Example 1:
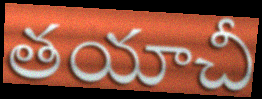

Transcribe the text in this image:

తయాచీ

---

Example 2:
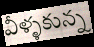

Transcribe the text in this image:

వీళ్ళకున్న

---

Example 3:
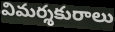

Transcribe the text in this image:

విమర్శకురాలు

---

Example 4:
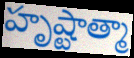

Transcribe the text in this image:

హృష్టాత్మా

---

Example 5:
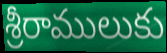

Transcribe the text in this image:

శ్రీరాములుకు